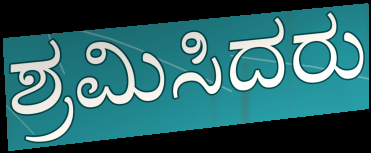
ಶ್ರಮಿಸಿದರು